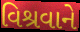
વિશ્રવાને